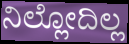
ನಿಲ್ಲೋದಿಲ್ಲ